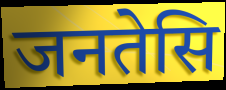
जनतेसि